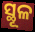
ସ୍ଥୂଳ